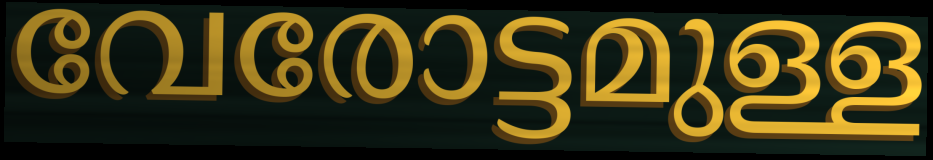
വേരോട്ടമുള്ള